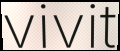
vivit